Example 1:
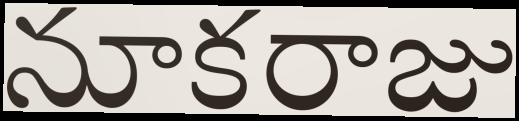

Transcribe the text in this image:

నూకరాజు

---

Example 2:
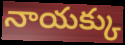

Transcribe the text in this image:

నాయక్కు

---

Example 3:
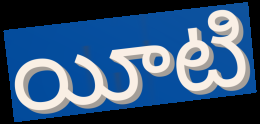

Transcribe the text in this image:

యీటి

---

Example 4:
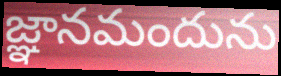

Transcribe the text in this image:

జ్ఞానమందును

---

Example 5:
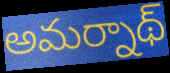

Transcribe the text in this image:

అమర్నాథ్